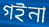
গইনা